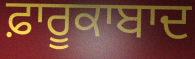
ਫ਼ਾਰੂਕਾਬਾਦ